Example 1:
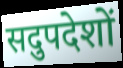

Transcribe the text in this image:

सदुपदेशों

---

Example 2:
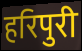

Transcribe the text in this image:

हरिपुरी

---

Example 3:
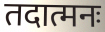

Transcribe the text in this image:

तदात्मनः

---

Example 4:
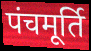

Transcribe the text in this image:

पंचमूर्ति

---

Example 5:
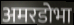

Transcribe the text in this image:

अमरडोभा